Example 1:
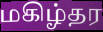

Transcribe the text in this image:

மகிழ்தர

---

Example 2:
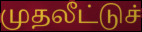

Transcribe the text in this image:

முதலீட்டுச்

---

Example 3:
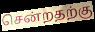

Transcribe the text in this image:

சென்றதற்கு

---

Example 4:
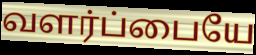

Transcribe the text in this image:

வளர்ப்பையே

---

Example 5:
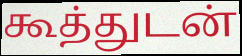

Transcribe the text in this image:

கூத்துடன்